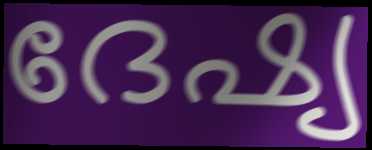
ദേഷ്യ